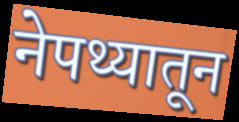
नेपथ्यातून